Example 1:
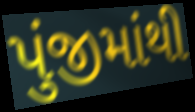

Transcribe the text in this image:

પુંજીમાંથી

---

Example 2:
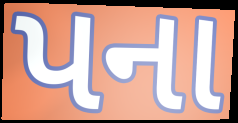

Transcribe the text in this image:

પના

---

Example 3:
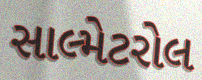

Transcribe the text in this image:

સાલ્મેટરોલ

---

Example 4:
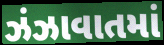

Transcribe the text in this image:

ઝંઝાવાતમાં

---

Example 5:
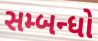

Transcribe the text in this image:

સમ્બન્ધો